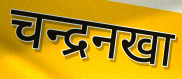
चन्द्रनखा